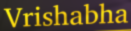
Vrishabha